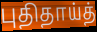
புதிதாய்த்